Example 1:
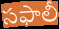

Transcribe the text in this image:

సఫాలీ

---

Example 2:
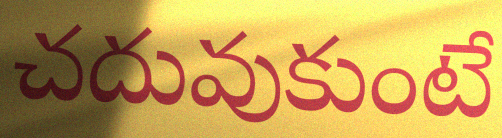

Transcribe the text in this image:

చదువుకుంటే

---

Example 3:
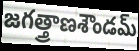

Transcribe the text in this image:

జగత్త్రాణశౌండమ్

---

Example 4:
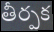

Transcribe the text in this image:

తీర్పక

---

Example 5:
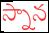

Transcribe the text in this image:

స్నాన